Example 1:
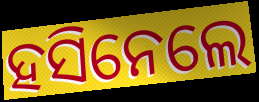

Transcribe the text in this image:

ହସିନେଲେ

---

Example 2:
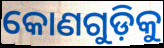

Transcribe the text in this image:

କୋଣଗୁଡ଼ିକୁ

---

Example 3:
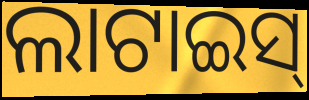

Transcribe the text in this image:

ଲାଟାଇସ୍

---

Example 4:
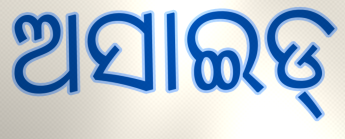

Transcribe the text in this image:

ଅସାଇଡ୍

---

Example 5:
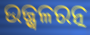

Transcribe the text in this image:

ଉଜ୍ଜ୍ୱଳରତ୍ନ